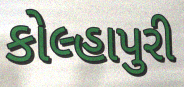
કોલ્હાપુરી